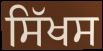
ਸਿੱਖਸ